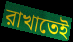
রাখাতেই